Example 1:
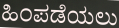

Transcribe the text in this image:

ಹಿಂಪಡೆಯಲು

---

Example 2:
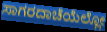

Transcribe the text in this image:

ಸಾಗರದಾಚೆಯೆಲ್ಲೋ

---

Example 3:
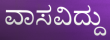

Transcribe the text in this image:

ವಾಸವಿದ್ದು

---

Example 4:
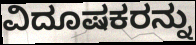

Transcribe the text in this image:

ವಿದೂಷಕರನ್ನು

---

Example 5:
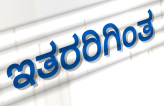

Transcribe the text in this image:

ಇತರರಿಗಿಂತ